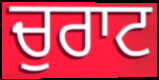
ਚੁਰਾਟ